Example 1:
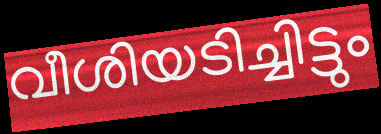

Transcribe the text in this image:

വീശിയടിച്ചിട്ടും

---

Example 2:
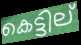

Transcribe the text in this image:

കെട്ടില്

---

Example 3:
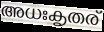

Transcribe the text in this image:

അധഃകൃതര്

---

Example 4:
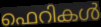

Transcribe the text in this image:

ഫെറികൾ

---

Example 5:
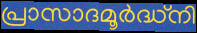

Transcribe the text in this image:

പ്രാസാദമൂർദ്ധ്നി